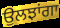
ਉਲਝਾਂਗਾ